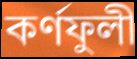
কর্ণফুলী